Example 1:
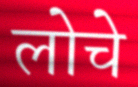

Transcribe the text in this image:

लोचे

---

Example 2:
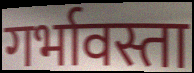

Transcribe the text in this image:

गर्भावस्ता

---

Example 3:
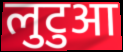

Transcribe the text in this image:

लुटुआ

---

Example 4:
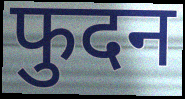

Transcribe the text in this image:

फुदन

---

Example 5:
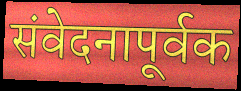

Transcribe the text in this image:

संवेदनापूर्वक